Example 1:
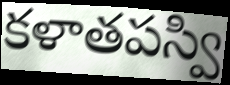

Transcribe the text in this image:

కళాతపస్వి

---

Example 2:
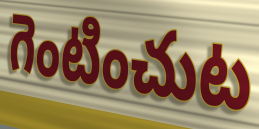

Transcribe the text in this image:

గెంటించుట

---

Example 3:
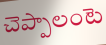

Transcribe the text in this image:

చెప్పాలంటె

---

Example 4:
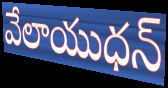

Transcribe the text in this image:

వేలాయుధన్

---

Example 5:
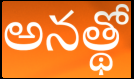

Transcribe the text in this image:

అనత్థో